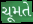
ચૂમતે